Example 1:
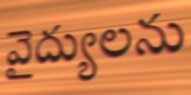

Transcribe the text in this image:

వైద్యులను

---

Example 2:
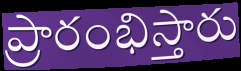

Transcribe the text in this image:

ప్రారంభిస్తారు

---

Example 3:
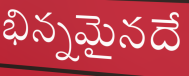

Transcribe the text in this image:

భిన్నమైనదే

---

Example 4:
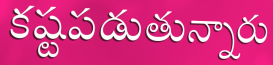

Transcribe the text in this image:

కష్టపడుతున్నారు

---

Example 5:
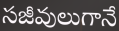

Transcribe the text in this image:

సజీవులుగానే